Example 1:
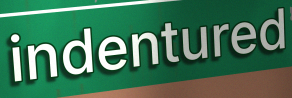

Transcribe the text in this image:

indentured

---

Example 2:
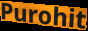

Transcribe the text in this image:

Purohit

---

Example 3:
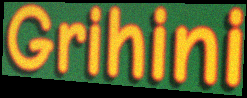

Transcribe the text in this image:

Grihini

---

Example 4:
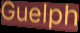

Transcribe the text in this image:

Guelph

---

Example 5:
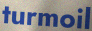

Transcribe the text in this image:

turmoil